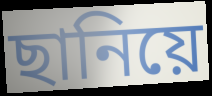
ছানিয়ে